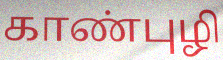
காண்புழி